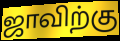
ஜாவிற்கு